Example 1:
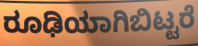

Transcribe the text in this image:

ರೂಢಿಯಾಗಿಬಿಟ್ಟರೆ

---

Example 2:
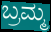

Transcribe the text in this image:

ಬ್ರಮ್ಮ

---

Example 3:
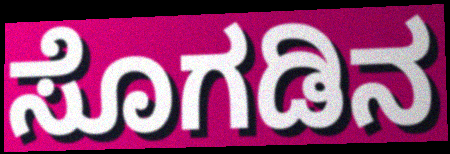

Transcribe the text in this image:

ಸೊಗಡಿನ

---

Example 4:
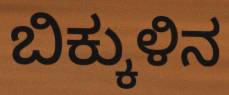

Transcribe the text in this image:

ಬಿಕ್ಕುಳಿನ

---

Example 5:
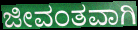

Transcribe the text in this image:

ಜೀವಂತವಾಗಿ